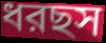
ধরছস